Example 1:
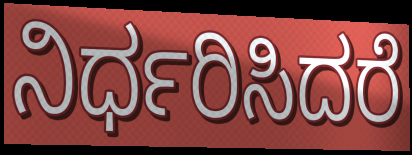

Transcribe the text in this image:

ನಿರ್ಧರಿಸಿದರೆ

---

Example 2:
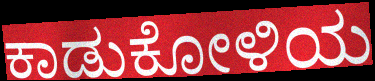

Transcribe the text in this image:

ಕಾಡುಕೋಳಿಯ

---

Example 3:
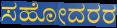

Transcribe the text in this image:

ಸಹೋದರರ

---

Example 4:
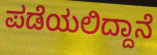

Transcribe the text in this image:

ಪಡೆಯಲಿದ್ದಾನೆ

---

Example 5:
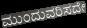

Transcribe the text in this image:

ಮುಂದುವರಿಸದೇ